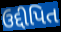
ઉદ્દીપિત